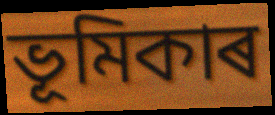
ভূমিকাৰ